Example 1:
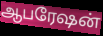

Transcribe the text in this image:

ஆபரேஷன்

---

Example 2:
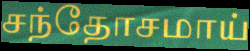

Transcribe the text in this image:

சந்தோசமாய்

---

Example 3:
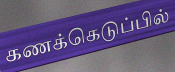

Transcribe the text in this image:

கணக்கெடுப்பில்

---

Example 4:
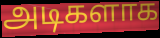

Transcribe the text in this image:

அடிகளாக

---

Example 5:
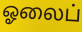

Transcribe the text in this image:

ஓலைப்